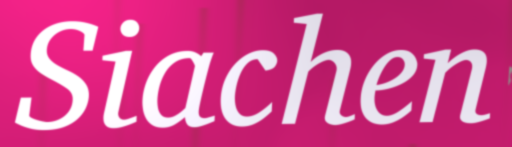
Siachen